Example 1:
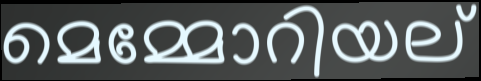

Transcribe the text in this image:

മെമ്മോറിയല്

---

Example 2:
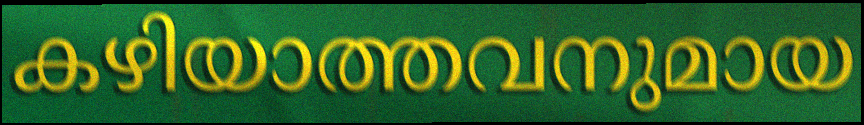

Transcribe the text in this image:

കഴിയാത്തവനുമായ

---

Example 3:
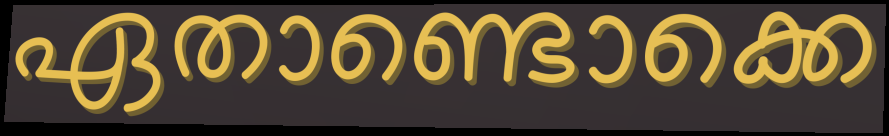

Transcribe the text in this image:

ഏതാണ്ടൊക്കെ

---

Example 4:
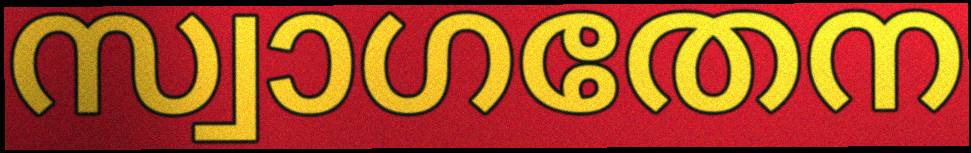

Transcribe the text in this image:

സ്വാഗതേന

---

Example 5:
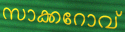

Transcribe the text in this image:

സാക്കറോവ്